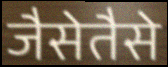
जैसेतैसे